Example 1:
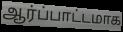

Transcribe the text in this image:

ஆர்ப்பாட்டமாக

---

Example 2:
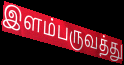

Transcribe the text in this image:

இளம்பருவத்து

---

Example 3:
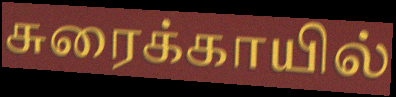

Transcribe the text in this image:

சுரைக்காயில்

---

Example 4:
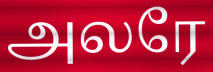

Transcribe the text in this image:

அலரே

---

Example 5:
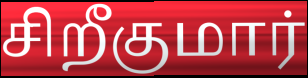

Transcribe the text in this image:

சிறீகுமார்